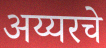
अय्यरचे